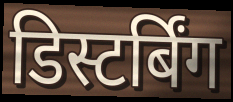
डिस्टर्बिंग